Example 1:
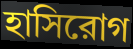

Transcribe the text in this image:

হাসিরোগ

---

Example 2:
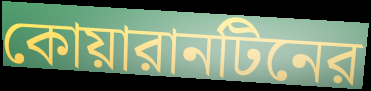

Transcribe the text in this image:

কোয়ারানটিনের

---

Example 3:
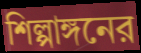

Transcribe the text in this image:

শিল্পাঙ্গনের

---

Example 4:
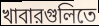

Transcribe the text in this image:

খাবারগুলিতে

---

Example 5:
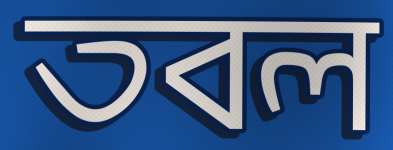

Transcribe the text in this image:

তবল